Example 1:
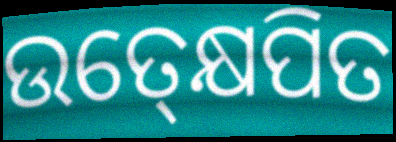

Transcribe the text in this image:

ଉତ୍କ୍ଷେପିତ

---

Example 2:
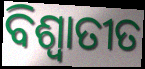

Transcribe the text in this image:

ବିଶ୍ଵାତୀତ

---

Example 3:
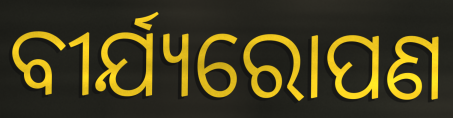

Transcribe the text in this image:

ବୀର୍ଯ୍ୟରୋପଣ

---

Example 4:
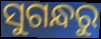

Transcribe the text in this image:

ସୁଗନ୍ଧରୁ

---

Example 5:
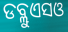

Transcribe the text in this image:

ଡବ୍ଲୁଏସଓ